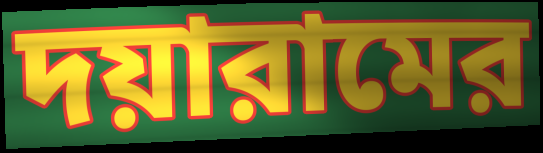
দয়ারামের